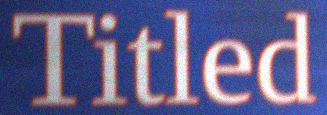
Titled